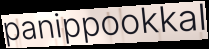
panippookkal